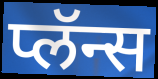
प्लॅन्स